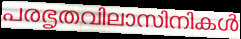
പരഭൃതവിലാസിനികൾ